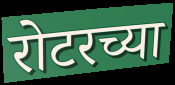
रोटरच्या